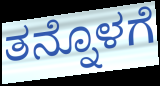
ತನ್ನೊಳಗೆ